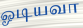
ஓடியவா